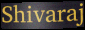
Shivaraj